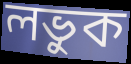
লভুক